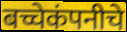
बच्चेकंपनीचे